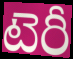
టెరీ